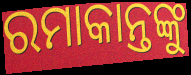
ରମାକାନ୍ତଙ୍କୁ